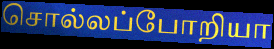
சொல்லப்போறியா